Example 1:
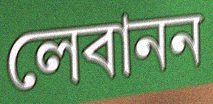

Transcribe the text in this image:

লেবানন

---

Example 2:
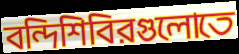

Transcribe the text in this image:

বন্দিশিবিরগুলোতে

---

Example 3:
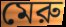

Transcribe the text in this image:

মেরু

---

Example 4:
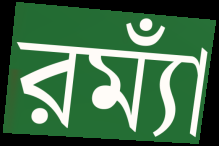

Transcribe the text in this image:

রম্যাঁ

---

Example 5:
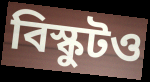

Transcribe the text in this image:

বিস্কুটও